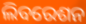
ଲିବରେଶନ